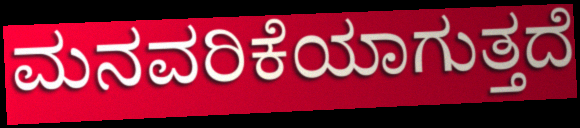
ಮನವರಿಕೆಯಾಗುತ್ತದೆ